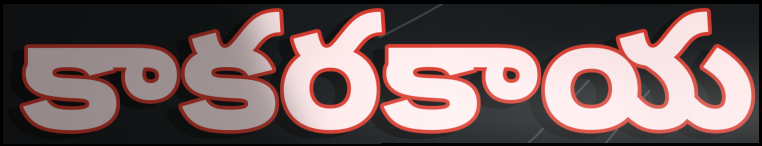
కాకరకాయ